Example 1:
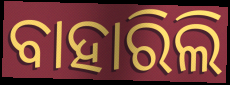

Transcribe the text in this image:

ବାହାରିଲି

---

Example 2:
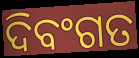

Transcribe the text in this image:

ଦିବଂଗତ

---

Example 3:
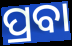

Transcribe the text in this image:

ପ୍ରବା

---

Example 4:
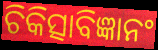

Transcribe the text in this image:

ଚିକିତ୍ସାବିଜ୍ଞାନଂ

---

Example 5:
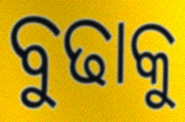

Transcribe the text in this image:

ବୁଢାକୁ